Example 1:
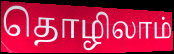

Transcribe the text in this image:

தொழிலாம்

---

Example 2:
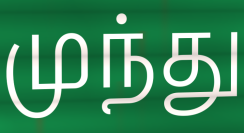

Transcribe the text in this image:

முந்து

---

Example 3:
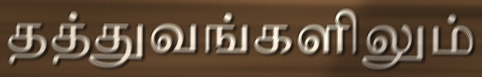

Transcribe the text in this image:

தத்துவங்களிலும்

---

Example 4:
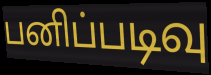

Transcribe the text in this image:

பனிப்படிவு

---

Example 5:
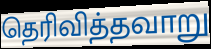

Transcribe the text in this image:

தெரிவித்தவாறு